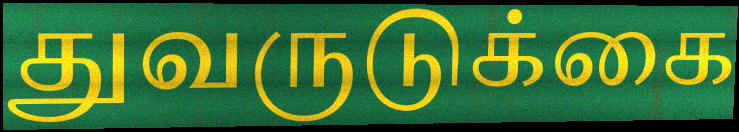
துவருடுக்கை